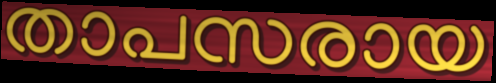
താപസരായ